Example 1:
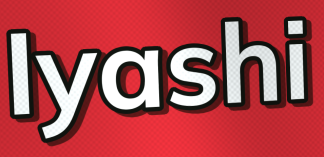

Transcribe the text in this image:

Iyashi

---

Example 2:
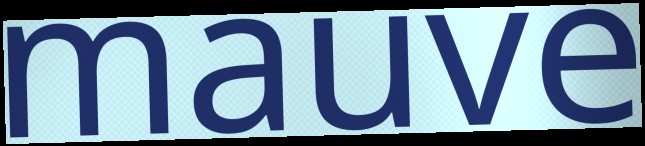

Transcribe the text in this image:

mauve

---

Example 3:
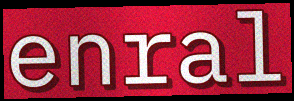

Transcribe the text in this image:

enral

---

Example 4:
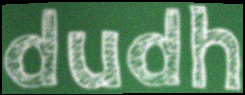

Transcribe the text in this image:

dudh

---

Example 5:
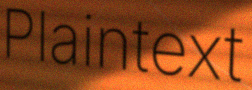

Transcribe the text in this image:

Plaintext